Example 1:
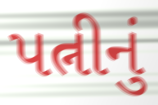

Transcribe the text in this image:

પત્નીનું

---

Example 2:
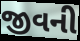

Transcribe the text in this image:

જીવની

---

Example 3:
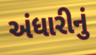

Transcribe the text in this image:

અંધારીનું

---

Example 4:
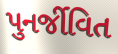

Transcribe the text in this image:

પુનર્જીવિત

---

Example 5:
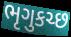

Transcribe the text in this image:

ભૃગુકચ્છ